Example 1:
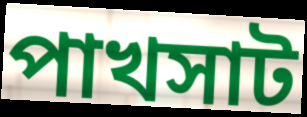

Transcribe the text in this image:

পাখসাট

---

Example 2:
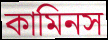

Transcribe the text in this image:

কামিনস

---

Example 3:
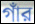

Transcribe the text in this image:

গাঁর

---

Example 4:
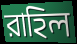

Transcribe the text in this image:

রাহিল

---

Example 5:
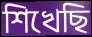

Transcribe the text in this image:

শিখেছি